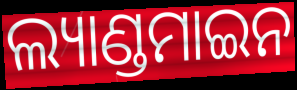
ଲ୍ୟାଣ୍ଡମାଇନ